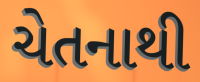
ચેતનાથી